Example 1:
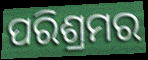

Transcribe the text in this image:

ପରିଶ୍ରମର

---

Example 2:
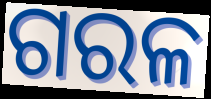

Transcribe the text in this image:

ଗରଳ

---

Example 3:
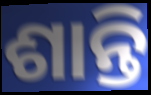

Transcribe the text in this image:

ଶାନ୍ତି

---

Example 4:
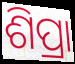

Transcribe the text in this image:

ଶିପ୍ରା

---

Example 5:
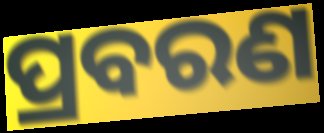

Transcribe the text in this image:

ପ୍ରବରଣ